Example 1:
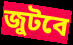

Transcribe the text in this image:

জুটবে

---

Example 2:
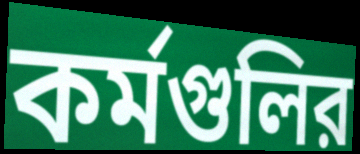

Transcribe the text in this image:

কর্মগুলির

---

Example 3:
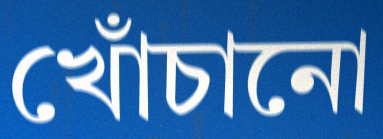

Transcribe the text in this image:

খোঁচানো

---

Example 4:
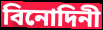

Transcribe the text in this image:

বিনোদিনী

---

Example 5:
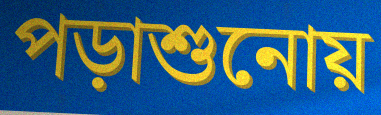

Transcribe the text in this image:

পড়াশুনোয়